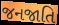
જનજાતિ